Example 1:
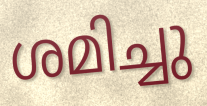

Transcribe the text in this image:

ശമിച്ചു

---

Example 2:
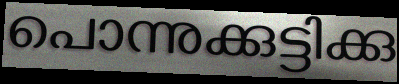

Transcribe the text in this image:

പൊന്നുക്കുട്ടിക്കു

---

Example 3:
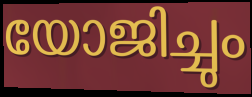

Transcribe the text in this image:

യോജിച്ചും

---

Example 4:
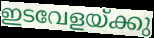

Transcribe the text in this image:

ഇടവേളയ്ക്കു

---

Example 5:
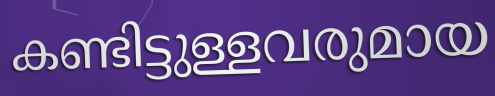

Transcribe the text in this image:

കണ്ടിട്ടുള്ളവരുമായ